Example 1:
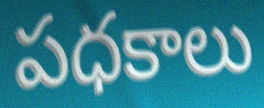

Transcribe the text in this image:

పధకాలు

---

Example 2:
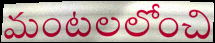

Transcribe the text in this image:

మంటలలోంచి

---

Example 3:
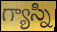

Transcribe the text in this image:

గ్యాస్ని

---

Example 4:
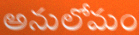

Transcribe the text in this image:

అనులోమం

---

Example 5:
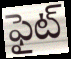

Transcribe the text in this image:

ఫైట్